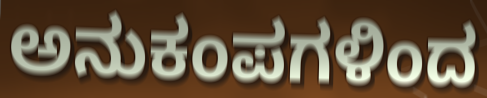
ಅನುಕಂಪಗಳಿಂದ